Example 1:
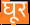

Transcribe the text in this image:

घूर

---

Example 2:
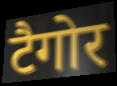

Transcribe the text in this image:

टैगोर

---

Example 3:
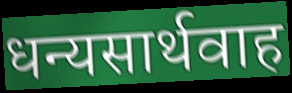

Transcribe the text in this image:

धन्यसार्थवाह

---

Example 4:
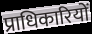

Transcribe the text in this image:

प्राधिकारियों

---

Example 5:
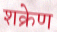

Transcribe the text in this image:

शक्रेण